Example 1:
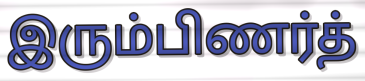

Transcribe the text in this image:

இரும்பிணர்த்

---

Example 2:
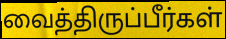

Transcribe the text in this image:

வைத்திருப்பீர்கள்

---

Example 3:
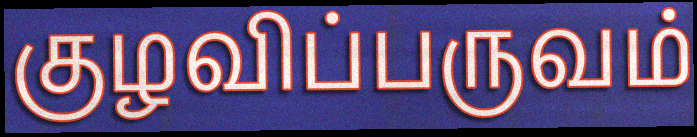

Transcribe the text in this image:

குழவிப்பருவம்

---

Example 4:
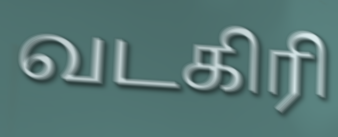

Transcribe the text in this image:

வடகிரி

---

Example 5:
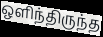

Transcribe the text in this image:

ஒளிந்திருந்த